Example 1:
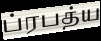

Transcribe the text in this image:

ப்ரபத்ய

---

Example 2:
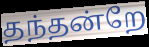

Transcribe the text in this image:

தந்தன்றே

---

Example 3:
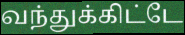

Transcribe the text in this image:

வந்துக்கிட்டே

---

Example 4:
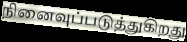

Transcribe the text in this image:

நினைவுப்படுத்துகிறது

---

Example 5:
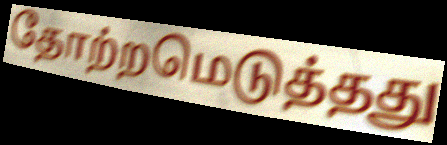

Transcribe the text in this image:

தோற்றமெடுத்தது